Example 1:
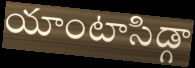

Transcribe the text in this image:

యాంటాసిడ్గా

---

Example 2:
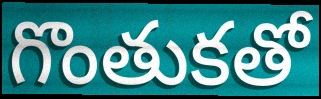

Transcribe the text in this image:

గొంతుకతో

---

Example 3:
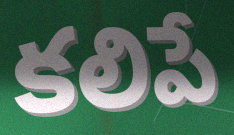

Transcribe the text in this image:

కలిపే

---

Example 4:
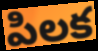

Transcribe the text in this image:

పిలక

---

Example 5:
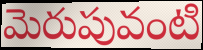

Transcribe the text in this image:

మెరుపువంటి